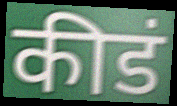
कीडं